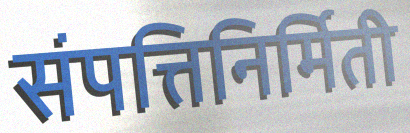
संपत्तिनिर्मिती